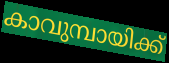
കാവുമ്പായിക്ക്